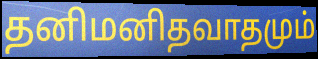
தனிமனிதவாதமும்